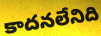
కాదనలేనిది